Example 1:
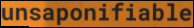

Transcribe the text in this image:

unsaponifiable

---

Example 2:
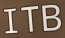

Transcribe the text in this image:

ITB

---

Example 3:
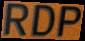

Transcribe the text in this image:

RDP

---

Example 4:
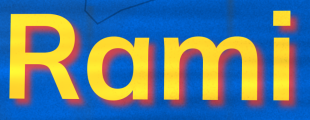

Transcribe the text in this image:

Rami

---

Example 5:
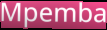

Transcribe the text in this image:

Mpemba